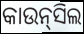
କାଉନ୍‍ସିଲ